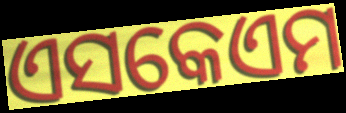
ଏସକେଏମ